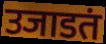
उजाडतं